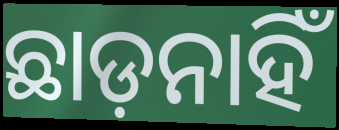
ଛାଡ଼ନାହିଁ